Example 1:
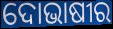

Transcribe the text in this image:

ଦୋଭାଷୀର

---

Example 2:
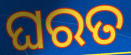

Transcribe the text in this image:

ଘରତ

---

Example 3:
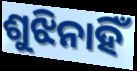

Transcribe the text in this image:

ଶୁଝିନାହିଁ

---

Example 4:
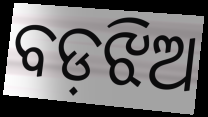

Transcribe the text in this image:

ବଡ଼ଝିଅ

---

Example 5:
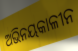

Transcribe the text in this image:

ଅଭିନୟକାଳୀନ